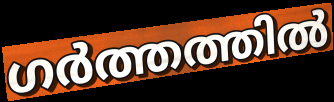
ഗർത്തത്തിൽ